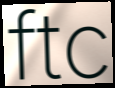
ftc